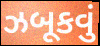
ઝબૂકવું